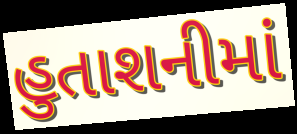
હુતાશનીમાં